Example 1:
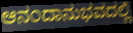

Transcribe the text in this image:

ಆನಂದಾನುಭವದಲ್ಲಿ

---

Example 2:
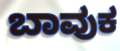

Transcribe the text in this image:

ಬಾವುಕ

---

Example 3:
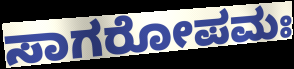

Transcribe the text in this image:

ಸಾಗರೋಪಮಃ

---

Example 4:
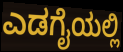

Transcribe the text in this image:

ಎಡಗೈಯಲ್ಲಿ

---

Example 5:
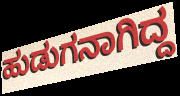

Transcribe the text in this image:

ಹುಡುಗನಾಗಿದ್ದ